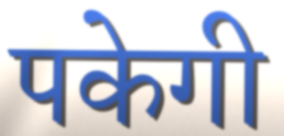
पकेगी